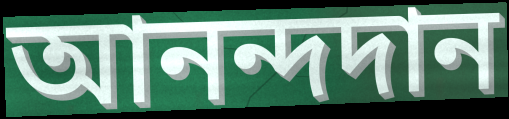
আনন্দদান